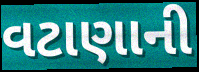
વટાણાની